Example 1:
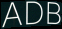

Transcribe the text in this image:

ADB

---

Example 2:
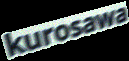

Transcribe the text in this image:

kurosawa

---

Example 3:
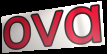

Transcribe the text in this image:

ova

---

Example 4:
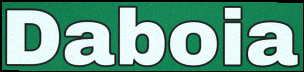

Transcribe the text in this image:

Daboia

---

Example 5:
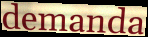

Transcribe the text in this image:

demanda